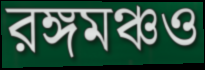
রঙ্গমঞ্চও